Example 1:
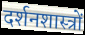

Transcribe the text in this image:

दर्शनशास्त्रों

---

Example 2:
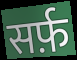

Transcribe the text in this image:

सर्फ़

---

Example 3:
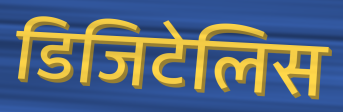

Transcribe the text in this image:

डिजिटेलिस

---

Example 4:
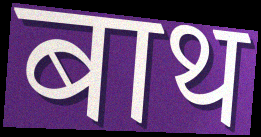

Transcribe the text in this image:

बाथ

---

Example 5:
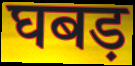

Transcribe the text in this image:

घबड़